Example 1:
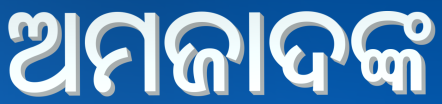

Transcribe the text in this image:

ଅମଜାଦଙ୍କ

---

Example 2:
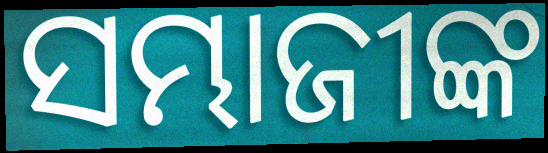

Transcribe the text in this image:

ସମ୍ଭାଜୀଙ୍କ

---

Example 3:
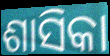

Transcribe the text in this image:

ଶାସିକା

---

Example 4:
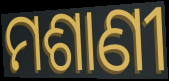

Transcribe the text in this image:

ମଶାଣୀ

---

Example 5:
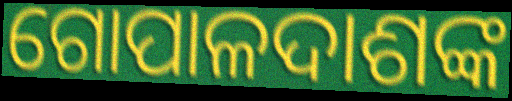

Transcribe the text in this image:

ଗୋପାଳଦାଶଙ୍କ